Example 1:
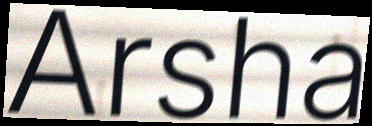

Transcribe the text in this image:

Arsha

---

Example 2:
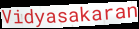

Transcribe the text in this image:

Vidyasakaran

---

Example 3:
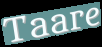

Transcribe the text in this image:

Taare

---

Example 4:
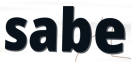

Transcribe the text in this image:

sabe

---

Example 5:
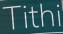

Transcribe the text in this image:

Tithi